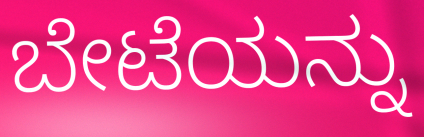
ಬೇಟೆಯನ್ನು